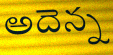
అదెన్న